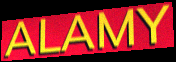
ALAMY